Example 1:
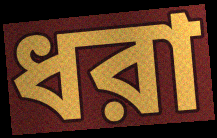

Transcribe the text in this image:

ধরা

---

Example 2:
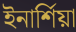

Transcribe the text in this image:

ইনার্শিয়া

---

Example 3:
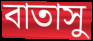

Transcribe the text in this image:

বাতাসু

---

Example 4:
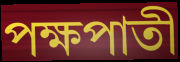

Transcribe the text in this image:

পক্ষপাতী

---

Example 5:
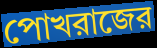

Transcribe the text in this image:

পোখরাজের